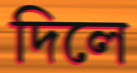
দিলে